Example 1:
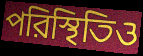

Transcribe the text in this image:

পরিস্থিতিও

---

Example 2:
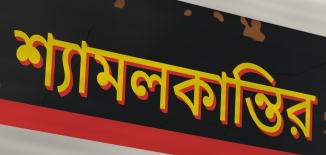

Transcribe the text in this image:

শ্যামলকান্তির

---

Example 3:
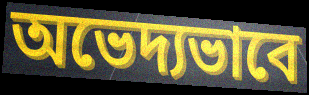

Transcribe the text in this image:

অভেদ্যভাবে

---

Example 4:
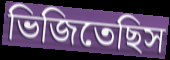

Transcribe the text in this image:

ভিজিতেছিস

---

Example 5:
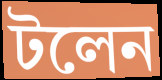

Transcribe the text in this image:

টলেন